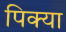
पिक्या